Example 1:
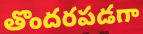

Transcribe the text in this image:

తొందరపడగా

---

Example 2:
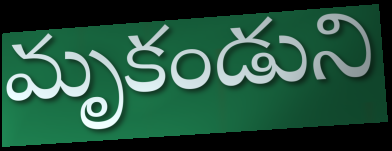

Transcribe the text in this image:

మృకండుని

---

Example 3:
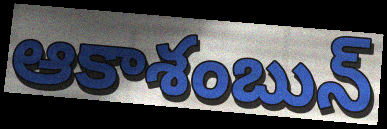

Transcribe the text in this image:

ఆకాశంబున్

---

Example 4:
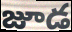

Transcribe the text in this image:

జూడ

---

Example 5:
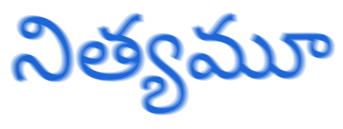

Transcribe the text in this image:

నిత్యమూ